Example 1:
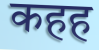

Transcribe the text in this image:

कहह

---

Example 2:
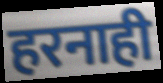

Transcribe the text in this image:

हरनाही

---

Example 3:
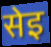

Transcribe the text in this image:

सेइ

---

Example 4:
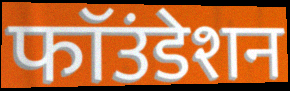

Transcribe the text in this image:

फॉउंडेशन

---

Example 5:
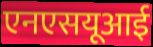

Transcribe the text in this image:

एनएसयूआई